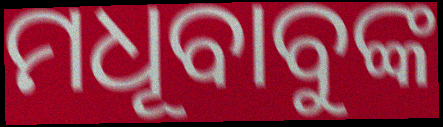
ମଧୂବାବୁଙ୍କ